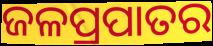
ଜଳପ୍ରପାତର